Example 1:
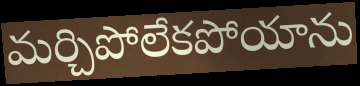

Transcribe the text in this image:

మర్చిపోలేకపోయాను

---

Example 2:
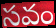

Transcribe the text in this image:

సవం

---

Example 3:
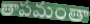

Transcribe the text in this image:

తాపమంతా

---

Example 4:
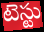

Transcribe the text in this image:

టెస్టు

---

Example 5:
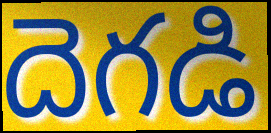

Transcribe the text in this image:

దెగడి